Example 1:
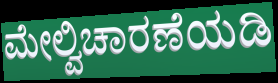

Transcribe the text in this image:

ಮೇಲ್ವಿಚಾರಣೆಯಡಿ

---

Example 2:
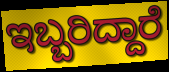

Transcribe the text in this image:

ಇಬ್ಬರಿದ್ದಾರೆ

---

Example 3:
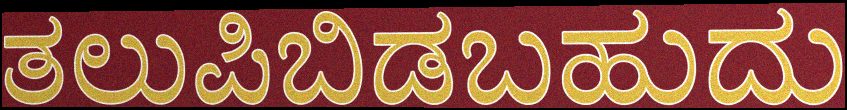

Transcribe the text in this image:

ತಲುಪಿಬಿಡಬಹುದು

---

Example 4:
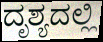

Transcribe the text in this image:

ದೃಶ್ಯದಲ್ಲಿ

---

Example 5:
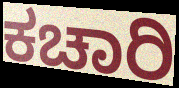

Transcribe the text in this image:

ಕಚಾರಿ